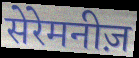
सेरेमनीज़